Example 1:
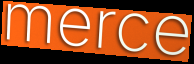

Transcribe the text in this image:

merce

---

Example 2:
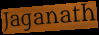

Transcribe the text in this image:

Jaganath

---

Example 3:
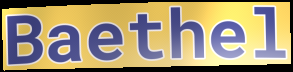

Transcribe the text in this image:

Baethel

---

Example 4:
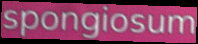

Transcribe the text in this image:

spongiosum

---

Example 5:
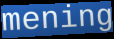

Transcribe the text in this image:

mening